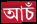
আচঁ